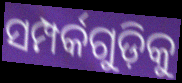
ସମ୍ପର୍କଗୁଡ଼ିକୁ